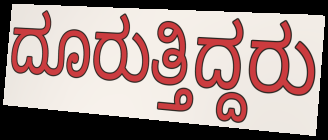
ದೂರುತ್ತಿದ್ದರು